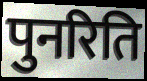
पुनरिति